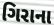
ગિરાના